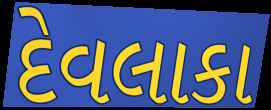
દેવલાકા